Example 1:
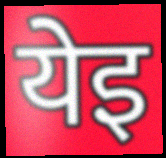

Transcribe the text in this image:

येइ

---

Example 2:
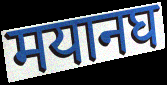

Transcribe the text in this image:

मयानघ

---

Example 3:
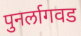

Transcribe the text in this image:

पुनर्लागवड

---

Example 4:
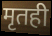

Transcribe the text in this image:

मृतही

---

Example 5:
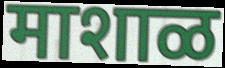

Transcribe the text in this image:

माशाळ